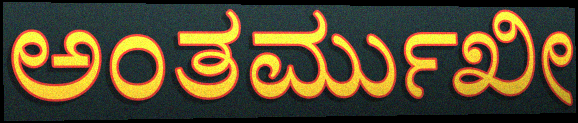
ಅಂತರ್ಮುಖೀ